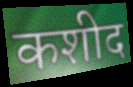
कशीद